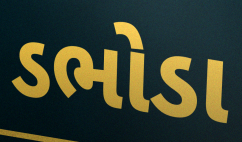
ડભોડા